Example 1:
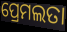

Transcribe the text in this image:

ପ୍ରେମଲତା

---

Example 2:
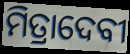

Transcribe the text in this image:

ମିତ୍ରାଦେବୀ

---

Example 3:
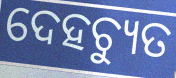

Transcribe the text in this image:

ଦେହଚ୍ୟୁତ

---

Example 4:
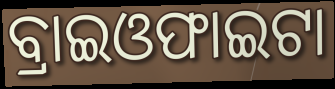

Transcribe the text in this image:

ବ୍ରାଇଓଫାଇଟା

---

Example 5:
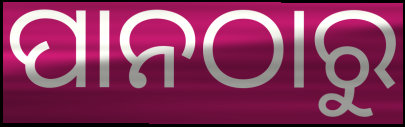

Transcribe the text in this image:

ପାନଠାରୁ